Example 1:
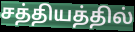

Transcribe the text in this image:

சத்தியத்தில்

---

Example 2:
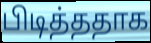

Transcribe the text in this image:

பிடித்ததாக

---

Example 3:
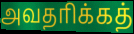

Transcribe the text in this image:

அவதரிக்கத்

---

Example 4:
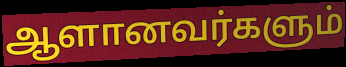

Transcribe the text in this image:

ஆளானவர்களும்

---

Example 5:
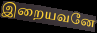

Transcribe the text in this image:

இறையவனே